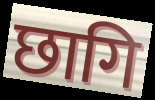
छागि